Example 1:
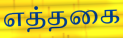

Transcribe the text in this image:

எத்தகை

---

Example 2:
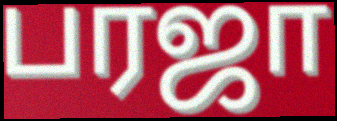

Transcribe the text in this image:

பரஜா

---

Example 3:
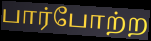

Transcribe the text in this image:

பார்போற்ற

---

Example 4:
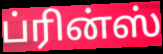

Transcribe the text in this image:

ப்ரின்ஸ்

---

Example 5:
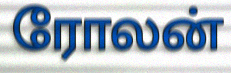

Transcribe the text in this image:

ரோலன்